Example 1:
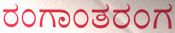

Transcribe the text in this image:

ರಂಗಾಂತರಂಗ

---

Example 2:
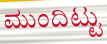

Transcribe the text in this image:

ಮುಂದಿಟ್ಟು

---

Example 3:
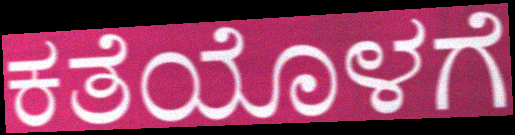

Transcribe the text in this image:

ಕತೆಯೊಳಗೆ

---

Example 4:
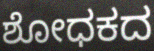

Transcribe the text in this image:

ಶೋಧಕದ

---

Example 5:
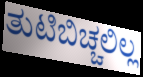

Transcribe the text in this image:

ತುಟಿಬಿಚ್ಚಲಿಲ್ಲ